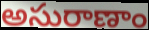
అసురాణాం